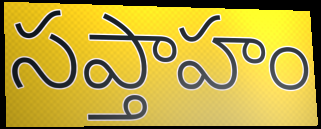
సప్తాహం